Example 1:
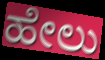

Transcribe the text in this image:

ಹೇಲು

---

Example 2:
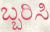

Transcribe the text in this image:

ಬ್ಬರಿಸಿ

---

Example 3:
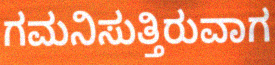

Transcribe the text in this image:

ಗಮನಿಸುತ್ತಿರುವಾಗ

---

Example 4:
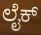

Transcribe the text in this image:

ಲೈಕ್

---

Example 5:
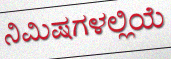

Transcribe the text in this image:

ನಿಮಿಷಗಳಲ್ಲಿಯೆ